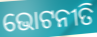
ଭୋଟନୀତି